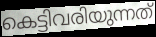
കെട്ടിവരിയുന്നത്